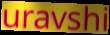
uravshi